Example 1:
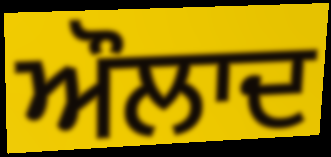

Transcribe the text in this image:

ਔਲਾਦ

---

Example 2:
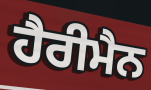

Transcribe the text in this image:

ਹੈਰੀਮੈਨ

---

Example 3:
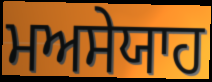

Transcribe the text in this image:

ਮਅਸੇਯਾਹ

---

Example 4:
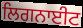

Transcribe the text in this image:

ਲਿਗਨਾਈਟ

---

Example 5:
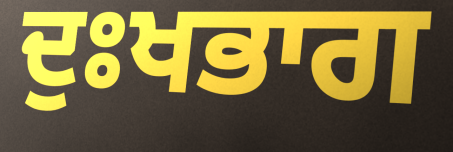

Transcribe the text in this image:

ਦੁਃਖਭਾਗ